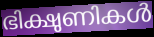
ഭിക്ഷുണികൾ